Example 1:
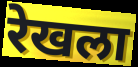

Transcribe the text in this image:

रेखला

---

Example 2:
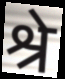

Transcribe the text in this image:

श्रे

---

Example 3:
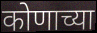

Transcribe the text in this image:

कोणाच्या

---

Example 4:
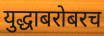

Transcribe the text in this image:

युद्धाबरोबरच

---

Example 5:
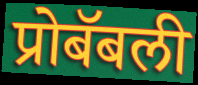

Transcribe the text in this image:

प्रोबॅबली